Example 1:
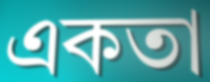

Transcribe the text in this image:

একতা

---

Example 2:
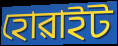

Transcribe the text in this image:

হোৱাইট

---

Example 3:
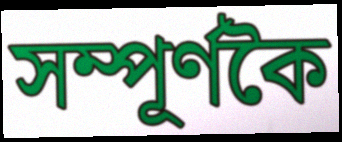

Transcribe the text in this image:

সম্পূৰ্ণকৈ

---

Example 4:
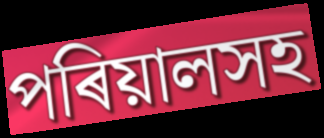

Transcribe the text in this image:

পৰিয়ালসহ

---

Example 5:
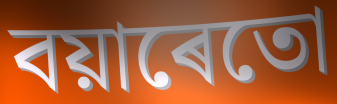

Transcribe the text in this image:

বয়াৰেতো